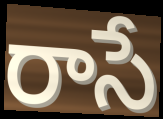
రాసే